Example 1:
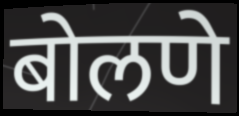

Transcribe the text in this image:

बोलणे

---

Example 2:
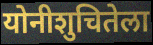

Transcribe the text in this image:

योनीशुचितेला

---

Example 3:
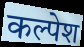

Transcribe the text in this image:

कल्पेश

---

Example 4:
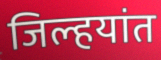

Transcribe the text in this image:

जिल्हयांत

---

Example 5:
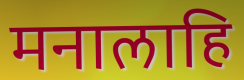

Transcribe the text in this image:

मनालाहि